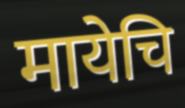
मायेचि